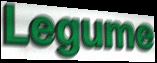
Legume